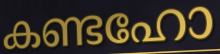
കണ്ടഹോ